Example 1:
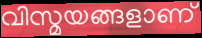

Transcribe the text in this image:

വിസ്മയങ്ങളാണ്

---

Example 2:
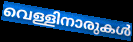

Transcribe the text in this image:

വെള്ളിനാരുകൾ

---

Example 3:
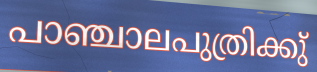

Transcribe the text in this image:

പാഞ്ചാലപുത്രിക്കു്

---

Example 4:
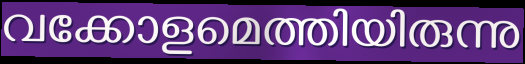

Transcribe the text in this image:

വക്കോളമെത്തിയിരുന്നു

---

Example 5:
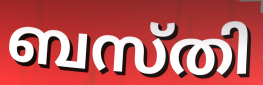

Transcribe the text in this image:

ബസ്തി